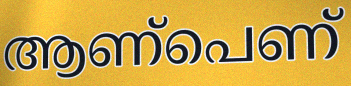
ആണ്പെണ്